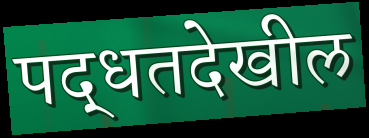
पद्धतदेखील